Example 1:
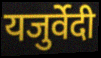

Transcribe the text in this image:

यजुर्वेदी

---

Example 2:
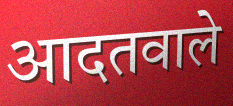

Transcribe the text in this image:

आदतवाले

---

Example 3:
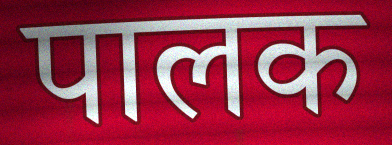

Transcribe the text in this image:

पालक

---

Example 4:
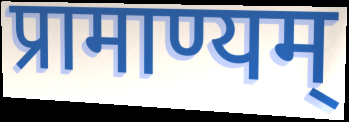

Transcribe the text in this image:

प्रामाण्यम्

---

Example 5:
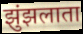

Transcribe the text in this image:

झुंझलाता